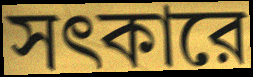
সৎকারে